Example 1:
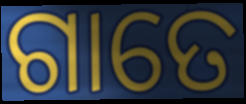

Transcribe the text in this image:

ଗାତେ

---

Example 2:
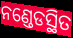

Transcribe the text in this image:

ନଣ୍ଡେଡସ୍ଥିତ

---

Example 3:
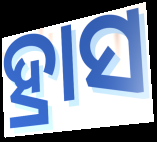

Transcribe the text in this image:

ହ୍ରାସ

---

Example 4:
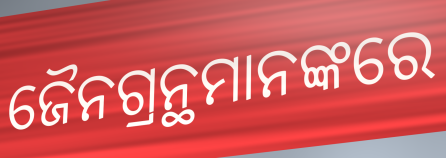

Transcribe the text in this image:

ଜୈନଗ୍ରନ୍ଥମାନଙ୍କରେ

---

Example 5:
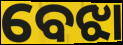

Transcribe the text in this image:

ବେଝା